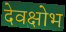
देवक्षोभ